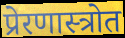
प्रेरणास्त्रोत